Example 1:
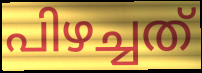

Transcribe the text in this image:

പിഴച്ചത്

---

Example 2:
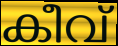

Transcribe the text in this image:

കീവ്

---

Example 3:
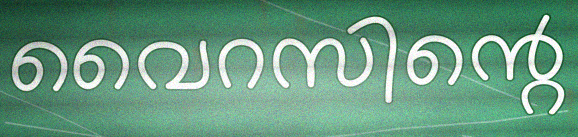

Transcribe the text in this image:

വൈറസിന്റെ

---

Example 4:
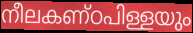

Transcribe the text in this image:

നീലകണ്ഠപിള്ളയും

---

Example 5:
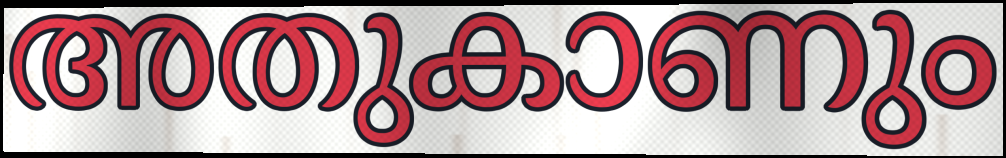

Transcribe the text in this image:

അതുകാണും